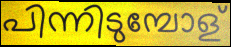
പിന്നിടുമ്പോള്